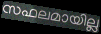
സഫലമായില്ല